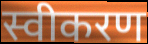
स्वीकरण